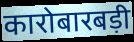
कारोबारबड़ी